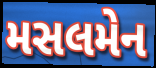
મસલમેન